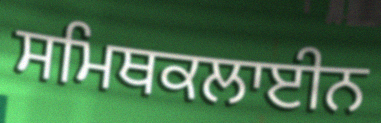
ਸਮਿਥਕਲਾਈਨ